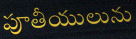
పూతీయులును